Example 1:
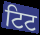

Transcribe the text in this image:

ਟਿਟ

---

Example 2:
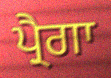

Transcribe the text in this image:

ਪ੍ਰੈਗਾ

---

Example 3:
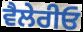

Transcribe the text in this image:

ਵੈਲੇਰੀਓ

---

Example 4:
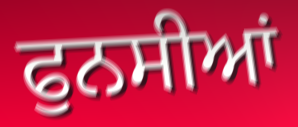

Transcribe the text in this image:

ਫੁਨਸੀਆਂ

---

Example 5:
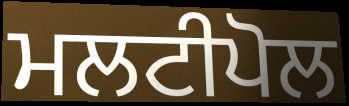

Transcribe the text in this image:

ਮਲਟੀਪੋਲ